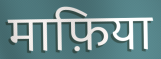
माफ़िया